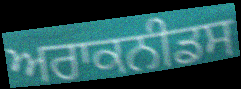
ਅਰਾਕਨੀਡਸ